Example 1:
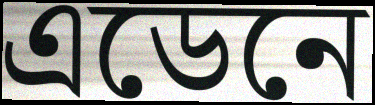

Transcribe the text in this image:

এডেনে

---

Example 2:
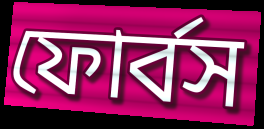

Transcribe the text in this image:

ফোর্বস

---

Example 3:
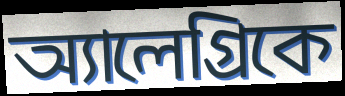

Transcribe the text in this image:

অ্যালেগ্রিকে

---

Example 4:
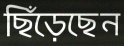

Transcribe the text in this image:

ছিঁড়েছেন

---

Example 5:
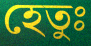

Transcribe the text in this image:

হেতুঃ